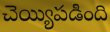
చెయ్యిపడింది